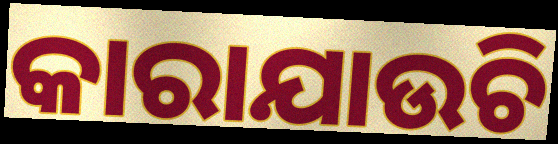
କାରାଯାଉଚି